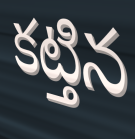
కట్తిన